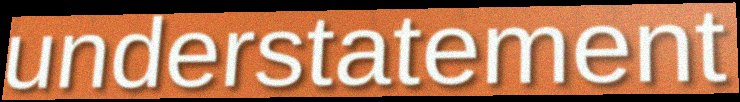
understatement